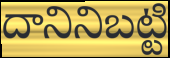
దానినిబట్టి